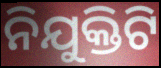
ନିଯୁକ୍ତିଟି